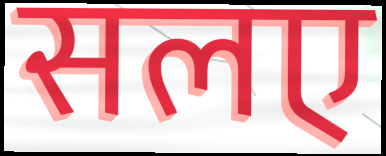
सलए